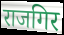
राजगिर